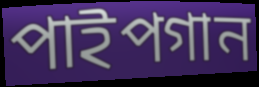
পাইপগান